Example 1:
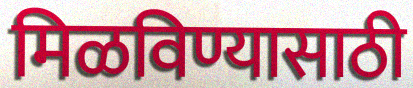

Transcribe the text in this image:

मिळविण्यासाठी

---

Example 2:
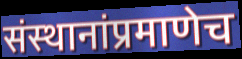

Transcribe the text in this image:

संस्थानांप्रमाणेच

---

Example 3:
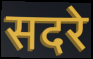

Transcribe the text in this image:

सदरे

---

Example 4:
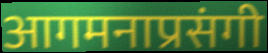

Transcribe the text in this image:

आगमनाप्रसंगी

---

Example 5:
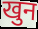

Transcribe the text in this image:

खुन